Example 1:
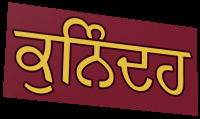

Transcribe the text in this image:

ਕੁਨਿੰਦਹ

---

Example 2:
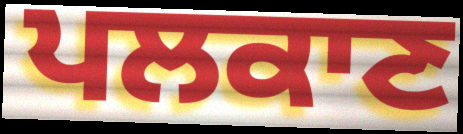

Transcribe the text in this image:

ਪਲਕਾਣ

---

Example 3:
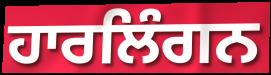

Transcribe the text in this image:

ਹਾਰਲਿੰਗਨ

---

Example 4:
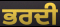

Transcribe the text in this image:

ਭਰਦੀ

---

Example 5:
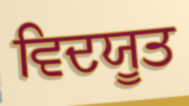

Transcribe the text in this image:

ਵਿਦਯੂਤ